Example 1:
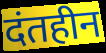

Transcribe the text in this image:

दंतहीन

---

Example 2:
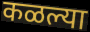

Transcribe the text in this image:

कळल्या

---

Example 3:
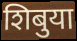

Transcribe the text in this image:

शिबुया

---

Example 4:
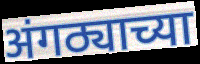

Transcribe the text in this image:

अंगठ्याच्या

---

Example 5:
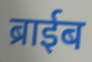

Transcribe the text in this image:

ब्राईब